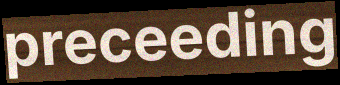
preceeding